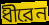
ধীরেন